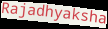
Rajadhyaksha